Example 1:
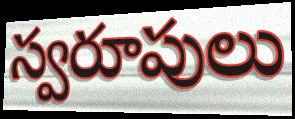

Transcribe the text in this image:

స్వరూపులు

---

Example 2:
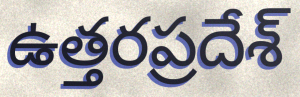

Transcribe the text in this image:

ఉత్తరప్రదేశ్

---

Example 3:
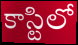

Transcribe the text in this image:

కాస్టిలో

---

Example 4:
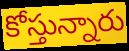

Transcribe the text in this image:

కోస్తున్నారు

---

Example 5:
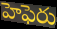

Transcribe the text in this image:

హెఫెరు